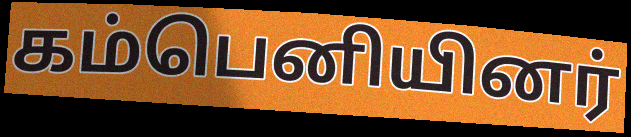
கம்பெனியினர்